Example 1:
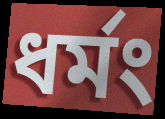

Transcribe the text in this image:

ধর্মং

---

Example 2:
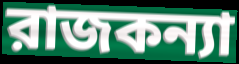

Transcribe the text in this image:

রাজকন্যা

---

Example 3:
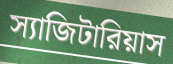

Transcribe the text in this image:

স্যাজিটারিয়াস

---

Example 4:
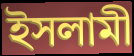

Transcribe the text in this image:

ইসলামী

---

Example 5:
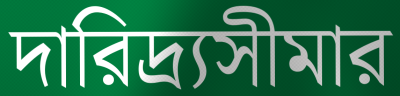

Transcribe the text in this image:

দারিদ্র্যসীমার